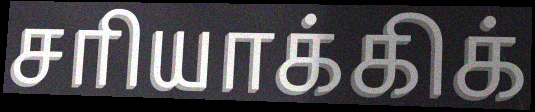
சரியாக்கிக்